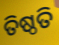
ତିଷ୍ଠତି